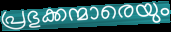
പ്രഭുക്കന്മാരെയും